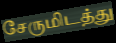
சேருமிடத்து